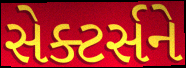
સેક્ટર્સને